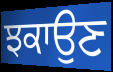
ਝਕਾਉਣ